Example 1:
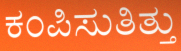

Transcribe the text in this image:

ಕಂಪಿಸುತಿತ್ತು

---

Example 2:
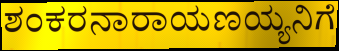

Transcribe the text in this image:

ಶಂಕರನಾರಾಯಣಯ್ಯನಿಗೆ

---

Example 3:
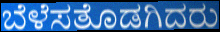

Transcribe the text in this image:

ಬೆಳೆಸತೊಡಗಿದರು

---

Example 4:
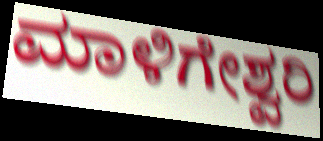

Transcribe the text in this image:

ಮಾಳಿಗೇಶ್ವರಿ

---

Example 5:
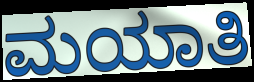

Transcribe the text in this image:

ಮಯಾತಿ